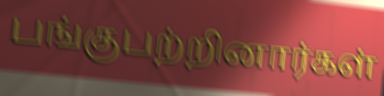
பங்குபற்றினார்கள்